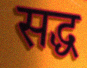
सद्ध